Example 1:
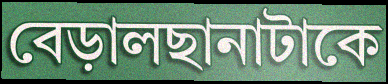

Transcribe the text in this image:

বেড়ালছানাটাকে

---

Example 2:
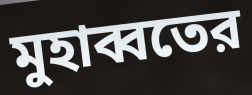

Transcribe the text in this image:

মুহাব্বতের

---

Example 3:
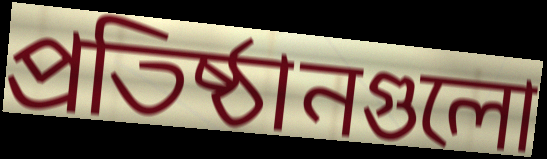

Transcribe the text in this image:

প্রতিষ্ঠানগুলো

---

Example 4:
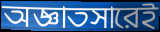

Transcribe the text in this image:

অজ্ঞাতসারেই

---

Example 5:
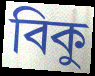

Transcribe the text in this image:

বিকু